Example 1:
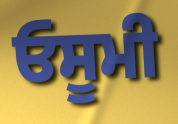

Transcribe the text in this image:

ਓਸੂਮੀ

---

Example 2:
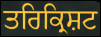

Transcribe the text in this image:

ਤਰਿਕ੍ਰਿਸ਼ਟ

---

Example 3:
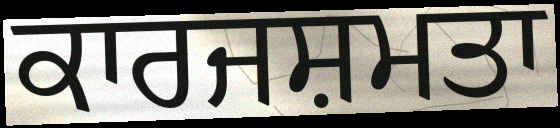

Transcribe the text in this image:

ਕਾਰਜਸ਼ਮਤਾ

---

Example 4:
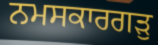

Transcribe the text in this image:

ਨਮਸਕਾਰਗੜੁ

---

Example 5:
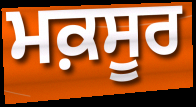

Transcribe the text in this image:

ਮਕ਼ਸੂਰ